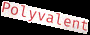
Polyvalent